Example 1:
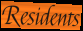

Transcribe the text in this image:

Residents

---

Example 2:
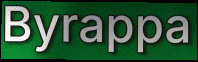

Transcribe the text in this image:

Byrappa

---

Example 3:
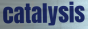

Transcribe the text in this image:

catalysis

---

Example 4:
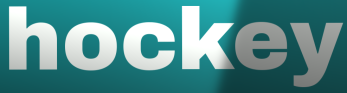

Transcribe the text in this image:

hockey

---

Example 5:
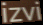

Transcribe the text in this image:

izvi